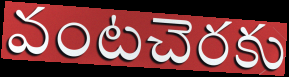
వంటచెరకు